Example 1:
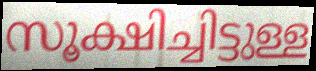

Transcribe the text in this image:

സൂക്ഷിച്ചിട്ടുള്ള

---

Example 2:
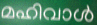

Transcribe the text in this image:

മഹിവാൾ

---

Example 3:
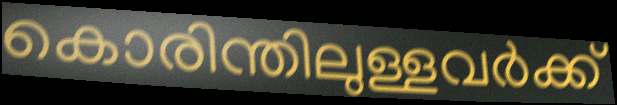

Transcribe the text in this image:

കൊരിന്തിലുള്ളവർക്ക്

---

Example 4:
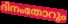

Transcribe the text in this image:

ദിനംതോറും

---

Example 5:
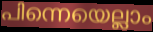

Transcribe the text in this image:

പിന്നെയെല്ലാം